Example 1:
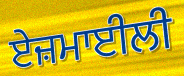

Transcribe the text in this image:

ਏਜ਼ਮਾਈਲੀ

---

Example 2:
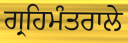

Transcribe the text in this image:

ਗ੍ਰਹਿਮੰਤਰਾਲੇ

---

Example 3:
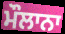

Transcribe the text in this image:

ਮੌਲਾਨਾ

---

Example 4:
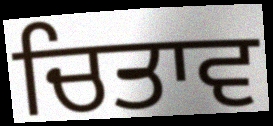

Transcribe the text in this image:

ਚਿਤਾਵ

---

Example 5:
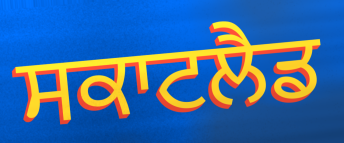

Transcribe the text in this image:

ਸਕਾਟਲੈਡ